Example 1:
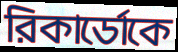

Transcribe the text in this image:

রিকার্ডোকে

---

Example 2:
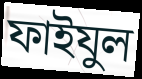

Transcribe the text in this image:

ফাইযুল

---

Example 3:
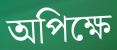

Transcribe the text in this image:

অপিক্ষে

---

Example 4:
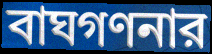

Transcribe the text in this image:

বাঘগণনার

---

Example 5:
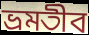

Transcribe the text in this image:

ভ্রমতীব